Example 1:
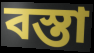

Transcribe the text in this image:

বস্তা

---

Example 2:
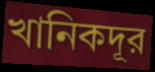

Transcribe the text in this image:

খানিকদূর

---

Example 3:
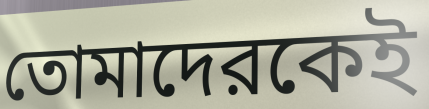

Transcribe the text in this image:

তোমাদেরকেই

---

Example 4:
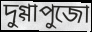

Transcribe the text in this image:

দুগ্গাপুজো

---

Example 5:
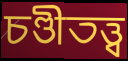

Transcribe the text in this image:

চণ্ডীতত্ত্ব